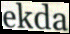
ekda